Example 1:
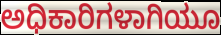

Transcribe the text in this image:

ಅಧಿಕಾರಿಗಳಾಗಿಯೂ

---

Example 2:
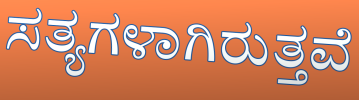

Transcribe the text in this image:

ಸತ್ಯಗಳಾಗಿರುತ್ತವೆ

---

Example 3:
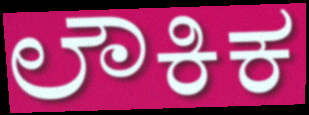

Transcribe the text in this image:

ಲೌಕಿಕ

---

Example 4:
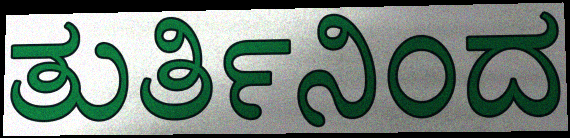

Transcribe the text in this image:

ತುರ್ತಿನಿಂದ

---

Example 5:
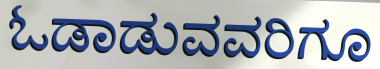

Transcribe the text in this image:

ಓಡಾಡುವವರಿಗೂ